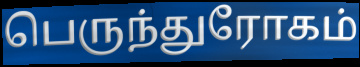
பெருந்துரோகம்